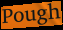
Pough